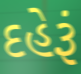
દહેરૂં